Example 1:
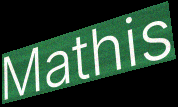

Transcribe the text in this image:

Mathis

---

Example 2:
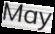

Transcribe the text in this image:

May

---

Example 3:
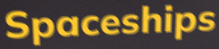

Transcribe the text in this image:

Spaceships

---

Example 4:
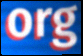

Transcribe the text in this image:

org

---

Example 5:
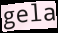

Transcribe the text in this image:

gela